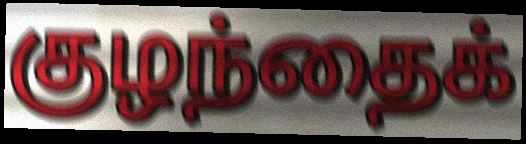
குழந்தைக்